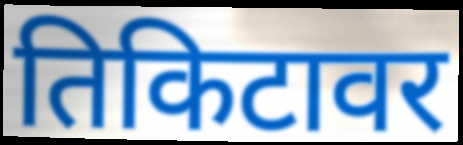
तिकिटावर